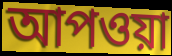
আপওয়া